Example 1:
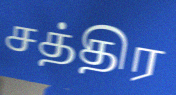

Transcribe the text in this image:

சத்திர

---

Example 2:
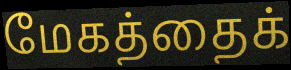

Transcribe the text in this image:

மேகத்தைக்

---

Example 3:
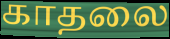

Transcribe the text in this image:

காதலை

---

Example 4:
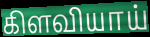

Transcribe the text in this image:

கிளவியாய்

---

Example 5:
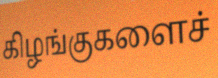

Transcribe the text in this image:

கிழங்குகளைச்